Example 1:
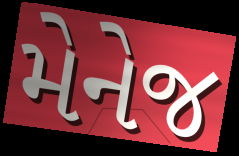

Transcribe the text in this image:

મેનેજ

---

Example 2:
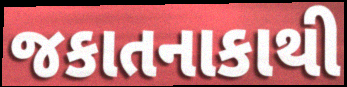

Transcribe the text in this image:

જકાતનાકાથી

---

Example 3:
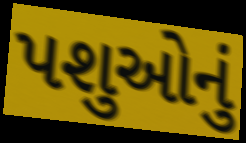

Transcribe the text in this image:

પશુઓનું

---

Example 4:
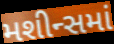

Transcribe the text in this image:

મશીન્સમાં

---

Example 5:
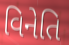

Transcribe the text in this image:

વિનેતિ